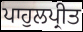
ਪਾਹੁਲਪ੍ਰੀਤ